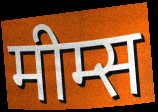
मीम्‍स